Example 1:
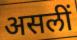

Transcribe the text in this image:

असलीं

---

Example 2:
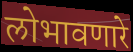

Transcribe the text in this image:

लोभावणारे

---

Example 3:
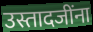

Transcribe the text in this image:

उस्तादजींना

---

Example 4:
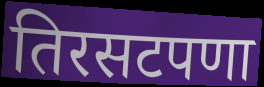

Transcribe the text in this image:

तिरसटपणा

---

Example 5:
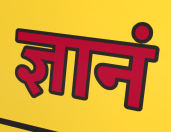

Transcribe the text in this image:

ज्ञानं